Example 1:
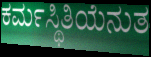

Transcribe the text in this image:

ಕರ್ಮಸ್ಥಿತಿಯೆನುತ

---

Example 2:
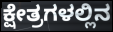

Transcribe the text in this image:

ಕ್ಷೇತ್ರಗಳಲ್ಲಿನ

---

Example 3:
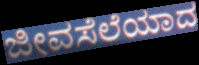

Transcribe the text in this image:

ಜೀವಸೆಲೆಯಾದ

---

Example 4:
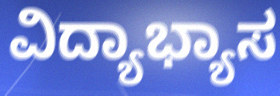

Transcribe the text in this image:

ವಿದ್ಯಾಭ್ಯಾಸ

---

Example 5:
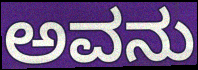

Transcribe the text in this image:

ಅವನು